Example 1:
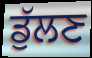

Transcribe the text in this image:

ਡੁੱਲਣ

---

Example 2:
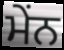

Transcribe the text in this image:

ਮੇਂਨ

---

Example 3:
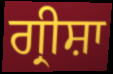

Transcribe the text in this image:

ਗ੍ਰੀਸ਼ਾ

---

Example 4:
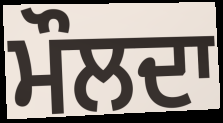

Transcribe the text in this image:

ਮੌਲਦਾ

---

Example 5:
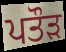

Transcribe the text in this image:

ਪਤੌੜ